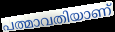
പത്മാവതിയാണ്